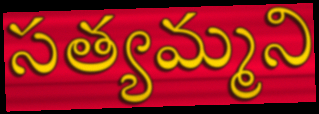
సత్యమ్మని